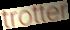
trotter